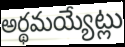
అర్థమయ్యేట్లు